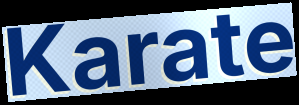
Karate